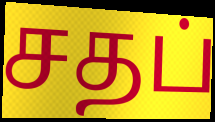
சதப்